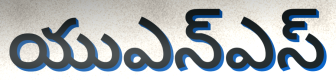
యుఎన్ఎస్